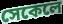
সেকেলে